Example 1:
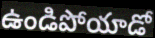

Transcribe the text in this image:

ఉండిపోయాడో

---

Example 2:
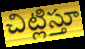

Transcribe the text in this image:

చిట్లిస్తూ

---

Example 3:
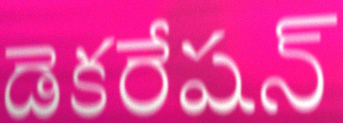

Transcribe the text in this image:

డెకరేషన్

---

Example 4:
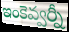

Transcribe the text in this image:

ఇంకెవ్వర్నీ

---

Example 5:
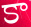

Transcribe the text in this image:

కా